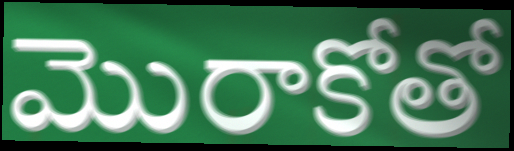
మొరాకోతో